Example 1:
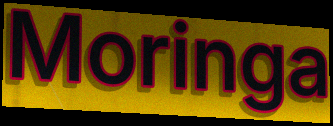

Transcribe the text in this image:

Moringa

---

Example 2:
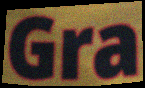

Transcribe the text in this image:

Gra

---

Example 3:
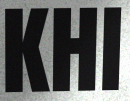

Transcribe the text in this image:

KHI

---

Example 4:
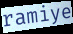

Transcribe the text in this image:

ramiye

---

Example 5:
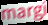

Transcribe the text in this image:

margi